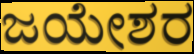
ಜಯೇಶರ